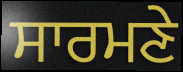
ਸਾਰਮਣੇ